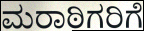
ಮರಾಠಿಗರಿಗೆ